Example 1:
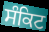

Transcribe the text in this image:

ਸੰਕਿਟ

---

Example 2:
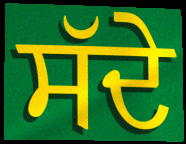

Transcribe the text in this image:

ਸੱਦੇ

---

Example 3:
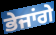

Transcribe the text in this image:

ਭੇਜਾਂਗੇ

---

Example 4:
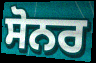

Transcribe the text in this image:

ਸੋਨਰ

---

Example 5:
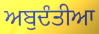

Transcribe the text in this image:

ਅਬੁਦੰਤੀਆ